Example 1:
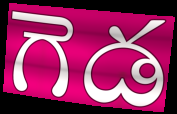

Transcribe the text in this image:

గెడ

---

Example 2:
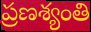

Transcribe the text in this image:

ప్రణశ్యంతి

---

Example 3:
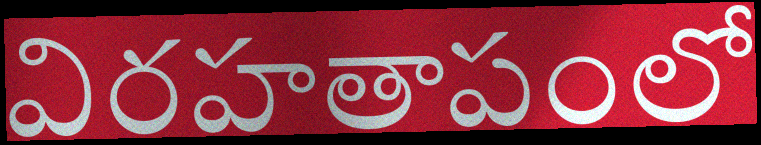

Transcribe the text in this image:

విరహతాపంలో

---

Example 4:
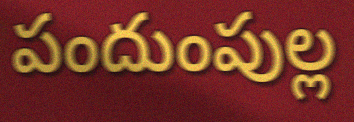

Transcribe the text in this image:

పందుంపుల్ల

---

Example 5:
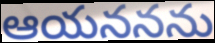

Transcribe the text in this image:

ఆయననను